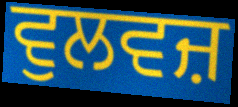
ਵੁਲਵਜ਼